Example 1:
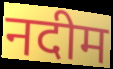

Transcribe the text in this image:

नदीम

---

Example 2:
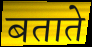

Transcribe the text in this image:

बताते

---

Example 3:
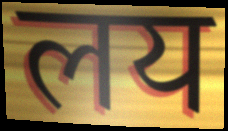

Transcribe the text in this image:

लय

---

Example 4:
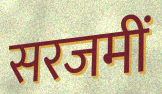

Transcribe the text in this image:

सरजमीं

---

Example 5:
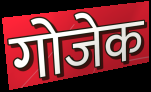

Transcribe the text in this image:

गोजेक